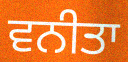
ਵਨੀਤਾ